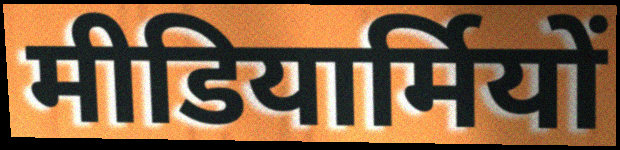
मीडियार्मियों